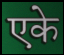
एके